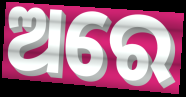
ଅରେ